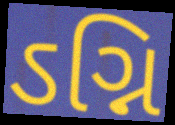
ઽગ્નિ